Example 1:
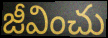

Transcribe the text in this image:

జీవించు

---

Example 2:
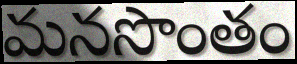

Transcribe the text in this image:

మనసొంతం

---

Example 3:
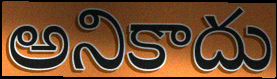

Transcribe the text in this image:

అనికాదు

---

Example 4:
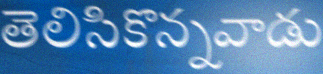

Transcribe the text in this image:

తెలిసికొన్నవాడు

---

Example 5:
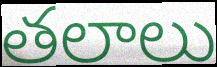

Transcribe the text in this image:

తలాలు